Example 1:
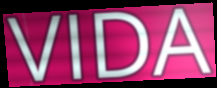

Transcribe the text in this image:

VIDA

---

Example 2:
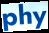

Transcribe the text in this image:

phy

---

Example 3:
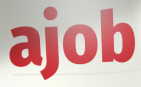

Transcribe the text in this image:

ajob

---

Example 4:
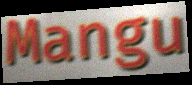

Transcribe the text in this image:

Mangu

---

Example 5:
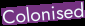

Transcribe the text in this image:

Colonised